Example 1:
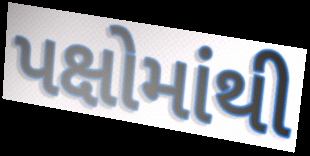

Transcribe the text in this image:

પક્ષોમાંથી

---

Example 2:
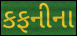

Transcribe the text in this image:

કફનીના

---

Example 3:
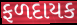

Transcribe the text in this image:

ફળદાયક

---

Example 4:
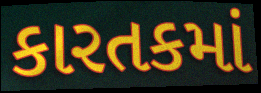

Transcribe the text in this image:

કારતકમાં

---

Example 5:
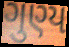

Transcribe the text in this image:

ગુણ્ય